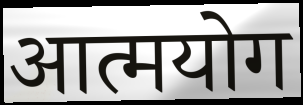
आत्मयोग